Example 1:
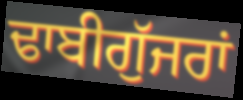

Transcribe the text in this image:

ਢਾਬੀਗੁੱਜਰਾਂ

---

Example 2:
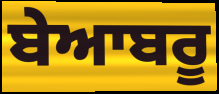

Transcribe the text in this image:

ਬੇਆਬਰੂ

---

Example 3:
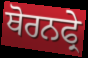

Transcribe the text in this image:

ਥੋਰਨਫ੍ਰੇ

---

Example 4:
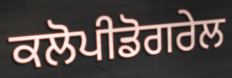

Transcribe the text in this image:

ਕਲੋਪੀਡੋਗਰੇਲ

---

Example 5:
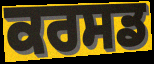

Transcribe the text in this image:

ਕਰਸਡ